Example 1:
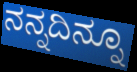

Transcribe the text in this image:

ನನ್ನದಿನ್ನೂ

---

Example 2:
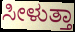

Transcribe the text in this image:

ಸೀಳುತ್ತಾ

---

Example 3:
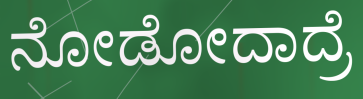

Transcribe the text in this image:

ನೋಡೋದಾದ್ರೆ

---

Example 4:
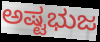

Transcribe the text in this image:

ಅಷ್ಟಭುಜ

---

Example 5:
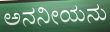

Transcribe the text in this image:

ಅನನೀಯನು